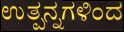
ಉತ್ಪನ್ನಗಳಿಂದ